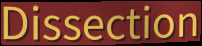
Dissection